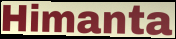
Himanta